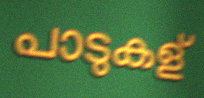
പാടുകള്